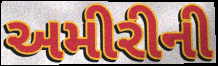
અમીરીની